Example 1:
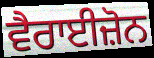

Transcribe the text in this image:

ਵੈਰਾਈਜ਼ੋਨ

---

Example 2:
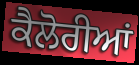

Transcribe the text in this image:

ਕੈਲੋਰੀਆਂ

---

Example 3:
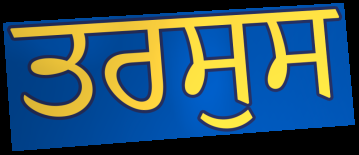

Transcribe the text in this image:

ਤਰਸੁਸ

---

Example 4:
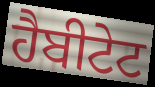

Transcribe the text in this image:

ਹੈਬੀਟੇਟ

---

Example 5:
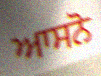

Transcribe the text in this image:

ਆਸਨੋ